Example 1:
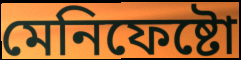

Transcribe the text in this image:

মেনিফেষ্টো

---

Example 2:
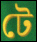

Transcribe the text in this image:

টে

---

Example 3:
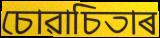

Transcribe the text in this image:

চোৱাচিতাৰ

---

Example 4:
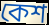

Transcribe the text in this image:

কেশ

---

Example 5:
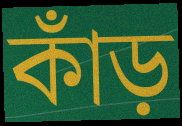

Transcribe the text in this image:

কাঁড়